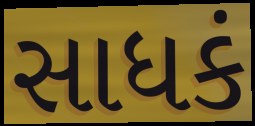
સાધકં